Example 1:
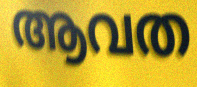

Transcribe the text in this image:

ആവത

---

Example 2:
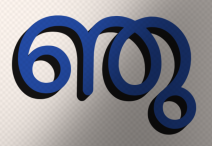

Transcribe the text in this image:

ഞു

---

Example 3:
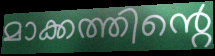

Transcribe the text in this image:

മാക്കത്തിന്റെ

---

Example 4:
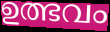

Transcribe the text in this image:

ഉത്ഭവം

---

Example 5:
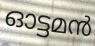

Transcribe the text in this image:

ഓട്ടമൻ